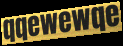
qqewewqe